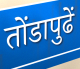
तोंडापुढें